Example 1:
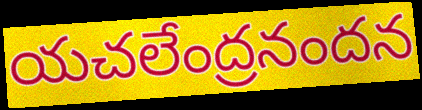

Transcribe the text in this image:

యచలేంద్రనందన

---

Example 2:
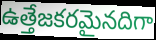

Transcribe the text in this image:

ఉత్తేజకరమైనదిగా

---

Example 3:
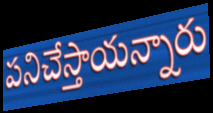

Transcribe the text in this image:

పనిచేస్తాయన్నారు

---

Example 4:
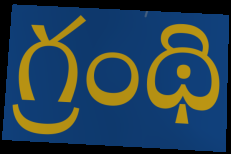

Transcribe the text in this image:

గ్రంథి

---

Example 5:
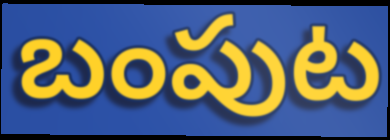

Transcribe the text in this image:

బంపుట